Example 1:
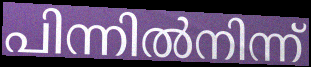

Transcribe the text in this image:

പിന്നിൽനിന്ന്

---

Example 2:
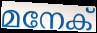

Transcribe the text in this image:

മനേക്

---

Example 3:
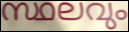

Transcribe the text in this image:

സ്ഥലവും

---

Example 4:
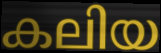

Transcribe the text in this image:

കലിയ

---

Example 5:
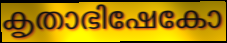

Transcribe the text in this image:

കൃതാഭിഷേകോ